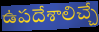
ఉపదేశాలిచ్చే